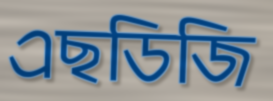
এছডিজি